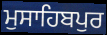
ਮੁਸਾਹਿਬਪੁਰ